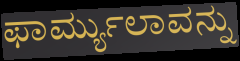
ಫಾರ್ಮ್ಯುಲಾವನ್ನು